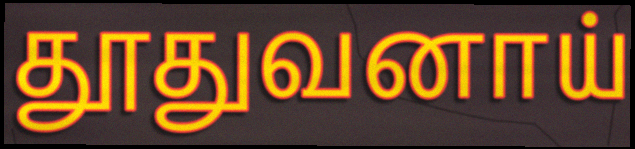
தூதுவனாய்